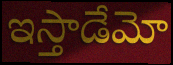
ఇస్తాడేమో